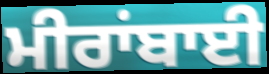
ਮੀਰਾਂਬਾਈ